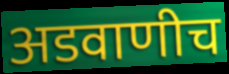
अडवाणीच